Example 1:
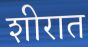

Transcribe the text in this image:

शीरात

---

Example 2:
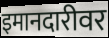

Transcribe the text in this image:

इमानदारीवर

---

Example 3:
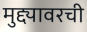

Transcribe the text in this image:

मुद्द्यावरची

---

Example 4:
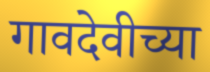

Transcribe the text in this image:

गावदेवीच्या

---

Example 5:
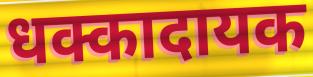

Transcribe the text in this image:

धक्कादायक